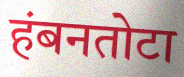
हंबनतोटा